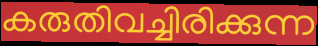
കരുതിവച്ചിരിക്കുന്ന